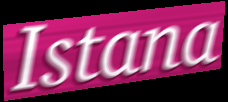
Istana